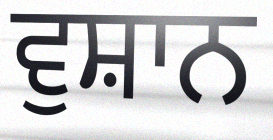
ਵੁਸ਼ਾਨ